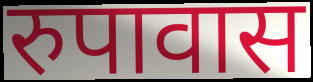
रुपावास